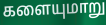
களையுமாறு